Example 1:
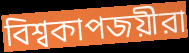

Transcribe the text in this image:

বিশ্বকাপজয়ীরা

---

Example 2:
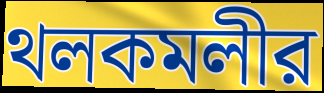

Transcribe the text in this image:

থলকমলীর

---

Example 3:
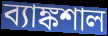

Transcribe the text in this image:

ব্যাঙ্কশাল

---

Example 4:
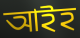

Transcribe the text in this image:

আইহ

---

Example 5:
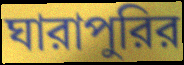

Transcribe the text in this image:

ঘারাপুরির